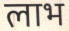
लाभ